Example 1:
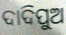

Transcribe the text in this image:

ଦାଦିପୁଅ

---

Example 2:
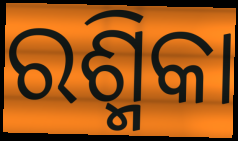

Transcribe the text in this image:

ରଶ୍ମିକା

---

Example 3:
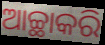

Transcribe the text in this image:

ଆଚ୍ଛାକରି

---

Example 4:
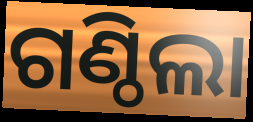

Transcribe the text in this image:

ଗଣ୍ଠିଲା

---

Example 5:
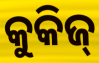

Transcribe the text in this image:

କୁକିଜ୍